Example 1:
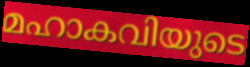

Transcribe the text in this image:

മഹാകവിയുടെ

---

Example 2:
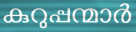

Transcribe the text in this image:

കുറുപ്പന്മാർ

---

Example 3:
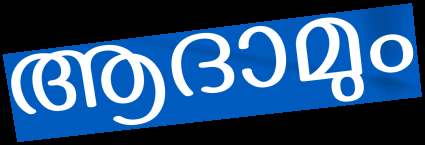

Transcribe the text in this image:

ആദാമും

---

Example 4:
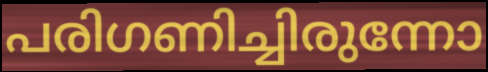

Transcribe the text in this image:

പരിഗണിച്ചിരുന്നോ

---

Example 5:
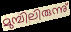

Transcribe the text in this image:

മുമ്പിലിരുന്നു്